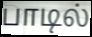
பாடில்